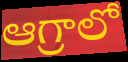
ఆగ్రాలో